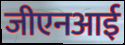
जीएनआई